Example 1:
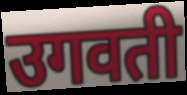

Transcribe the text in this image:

उगवती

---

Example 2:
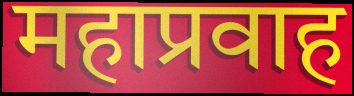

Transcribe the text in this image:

महाप्रवाह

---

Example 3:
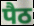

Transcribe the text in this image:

पैठ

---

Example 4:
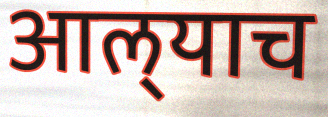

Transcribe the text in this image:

आल्याच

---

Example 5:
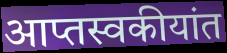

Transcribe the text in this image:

आप्तस्वकीयांत